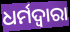
ଧର୍ମଦ୍ଵାରା